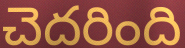
చెదరింది